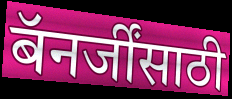
बॅनर्जींसाठी